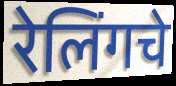
रेलिंगचे